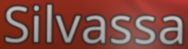
Silvassa